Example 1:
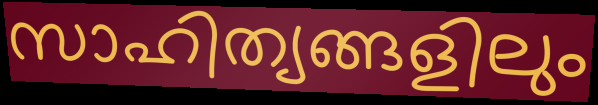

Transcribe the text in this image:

സാഹിത്യങ്ങളിലും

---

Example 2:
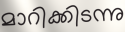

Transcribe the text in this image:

മാറിക്കിടന്നു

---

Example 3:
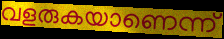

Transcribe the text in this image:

വളരുകയാണെന്ന്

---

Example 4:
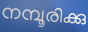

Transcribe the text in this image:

നമ്പൂരിക്കു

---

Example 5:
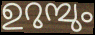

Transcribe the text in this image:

ഉറുമ്പും